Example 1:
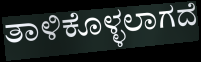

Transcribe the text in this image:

ತಾಳಿಕೊಳ್ಳಲಾಗದೆ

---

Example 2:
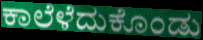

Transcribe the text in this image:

ಕಾಲೆಳೆದುಕೊಂಡು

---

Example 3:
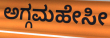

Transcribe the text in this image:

ಅಗ್ಗಮಹೇಸೀ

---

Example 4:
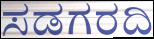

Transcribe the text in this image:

ಸಡಗರದಿ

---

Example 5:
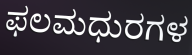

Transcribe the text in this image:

ಫಲಮಧುರಗಳ